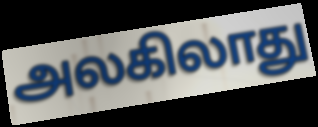
அலகிலாது